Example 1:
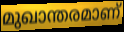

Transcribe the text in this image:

മുഖാന്തരമാണ്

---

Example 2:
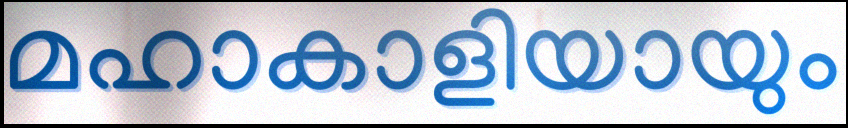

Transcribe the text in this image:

മഹാകാളിയായും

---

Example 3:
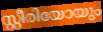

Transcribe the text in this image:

സ്റ്റീരിയോയും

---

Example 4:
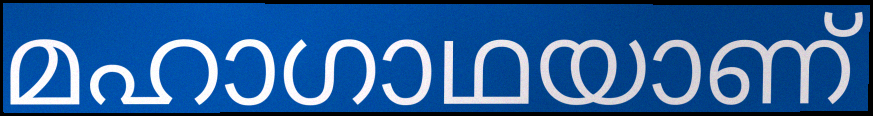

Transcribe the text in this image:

മഹാഗാഥയാണ്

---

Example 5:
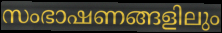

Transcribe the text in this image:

സംഭാഷണങ്ങളിലും